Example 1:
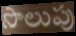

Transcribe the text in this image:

సొలుపు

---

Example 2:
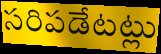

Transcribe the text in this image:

సరిపడేటట్లు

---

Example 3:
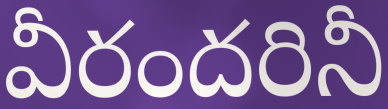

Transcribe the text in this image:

వీరందరినీ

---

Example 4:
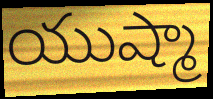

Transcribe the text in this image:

యుష్మా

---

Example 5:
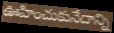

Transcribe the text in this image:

ఊహించుకునేదాన్ని